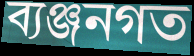
ব্যঞ্জনগত